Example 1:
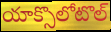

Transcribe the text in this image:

యాక్సొలోటొల్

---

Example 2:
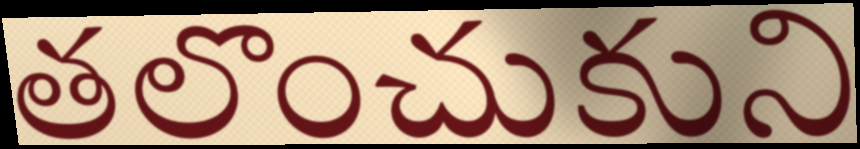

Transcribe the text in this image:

తలొంచుకుని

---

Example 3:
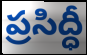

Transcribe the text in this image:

ప్రసిద్ధీ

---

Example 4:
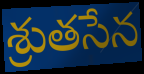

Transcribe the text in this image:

శ్రుతసేన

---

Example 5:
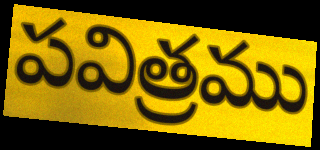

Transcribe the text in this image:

పవిత్రము